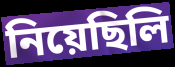
নিয়েছিলি